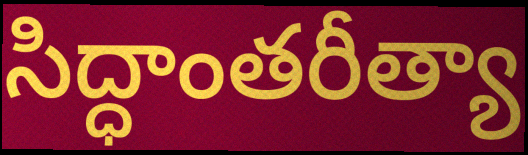
సిద్ధాంతరీత్యా